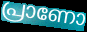
പ്രാണോ